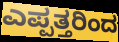
ಎಪ್ಪತ್ತರಿಂದ